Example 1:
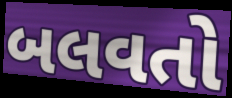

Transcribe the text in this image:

બલવતો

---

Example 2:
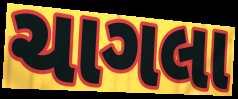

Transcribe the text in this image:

ચાગલા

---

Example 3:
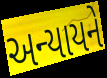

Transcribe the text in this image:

અન્યાયને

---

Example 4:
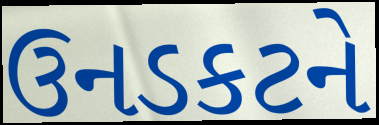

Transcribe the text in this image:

ઉનડકટને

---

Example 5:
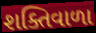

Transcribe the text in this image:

શક્તિવાળા